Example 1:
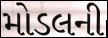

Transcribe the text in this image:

મોડલની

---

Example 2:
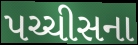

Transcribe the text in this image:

પચ્ચીસના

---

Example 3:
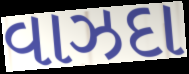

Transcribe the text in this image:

વાઝદા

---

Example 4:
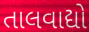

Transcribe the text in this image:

તાલવાદ્યો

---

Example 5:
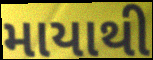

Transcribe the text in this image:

માયાથી